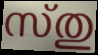
സ്‌തു